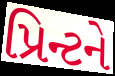
પ્રિન્ટને